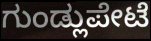
ಗುಂಡ್ಲುಪೇಟೆ